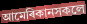
আমেৰিকানসকলে